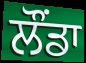
ਲੌਂਡਾ